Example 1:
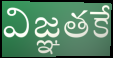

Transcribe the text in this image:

విజ్ఞతకే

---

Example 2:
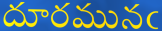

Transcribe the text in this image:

దూరమునఁ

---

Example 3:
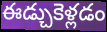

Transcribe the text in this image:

ఈడ్చుకెళ్లడం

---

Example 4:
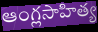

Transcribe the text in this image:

ఆంగ్లసాహిత్య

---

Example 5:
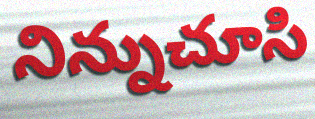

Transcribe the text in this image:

నిన్నుచూసి